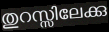
തുറസ്സിലേക്കു